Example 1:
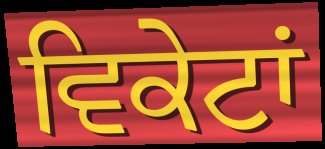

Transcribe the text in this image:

ਵਿਕੇਟਾਂ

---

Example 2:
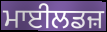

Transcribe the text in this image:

ਮਾਈਲਡਜ਼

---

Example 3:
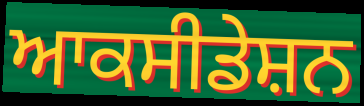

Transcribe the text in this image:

ਆਕਸੀਡੇਸ਼ਨ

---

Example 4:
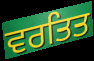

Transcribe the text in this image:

ਵਰਤਿਤ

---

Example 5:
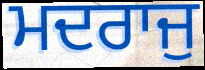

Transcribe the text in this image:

ਮਦਰਾਜੁ